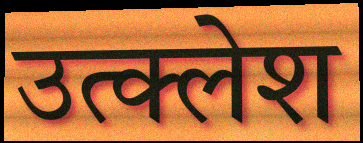
उत्क्लेश